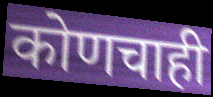
कोणचाही